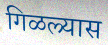
गिळल्यास